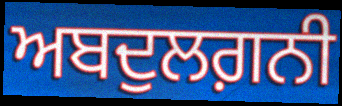
ਅਬਦੁਲਗ਼ਨੀ